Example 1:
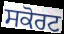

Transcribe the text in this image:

ਸਕੋਰਟ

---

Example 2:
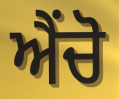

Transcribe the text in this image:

ਐਂਚੋ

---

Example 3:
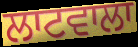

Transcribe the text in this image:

ਲਾਟਵਾਲਾ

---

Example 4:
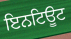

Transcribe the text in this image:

ਇਨਟਿਊਟ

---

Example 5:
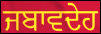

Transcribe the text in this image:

ਜਬਾਵਦੇਹ